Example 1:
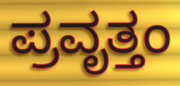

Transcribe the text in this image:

ಪ್ರವೃತ್ತಂ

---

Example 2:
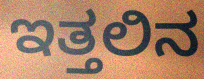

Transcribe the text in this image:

ಇತ್ತಲಿನ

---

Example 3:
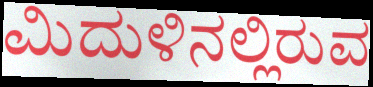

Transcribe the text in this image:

ಮಿದುಳಿನಲ್ಲಿರುವ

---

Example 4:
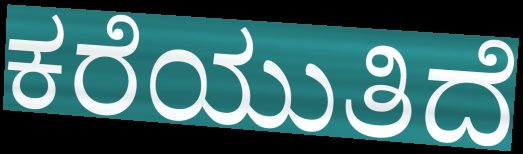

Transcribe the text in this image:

ಕರೆಯುತಿದೆ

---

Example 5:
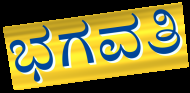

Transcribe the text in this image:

ಭಗವತಿ